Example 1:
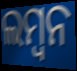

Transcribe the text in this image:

ଲମ୍ବନ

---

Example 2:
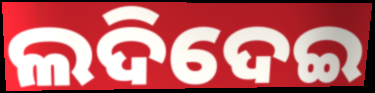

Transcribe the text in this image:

ଲଦିଦେଇ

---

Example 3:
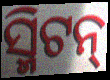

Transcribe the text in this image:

ସ୍ମିଟନ୍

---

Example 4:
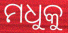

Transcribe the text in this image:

ମଧୁକୁ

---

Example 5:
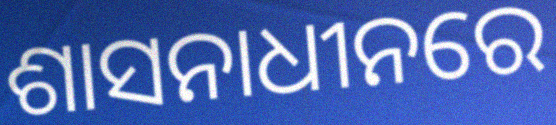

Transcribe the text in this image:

ଶାସନାଧୀନରେ